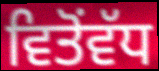
ਵਿਤੋਂਵੱਧ